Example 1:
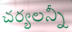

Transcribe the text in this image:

చర్యలన్నీ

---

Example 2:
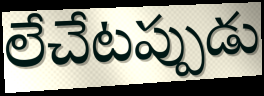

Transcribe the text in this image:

లేచేటప్పుడు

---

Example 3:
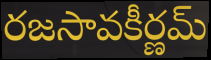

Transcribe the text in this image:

రజసావకీర్ణమ్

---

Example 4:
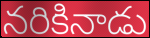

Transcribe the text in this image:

నరికినాడు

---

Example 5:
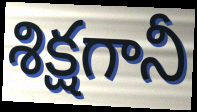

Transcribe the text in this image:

శిక్షగానీ